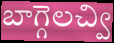
బాగ్గెలచ్వి